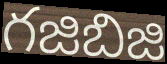
గజిబిజి